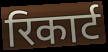
रिकार्ट